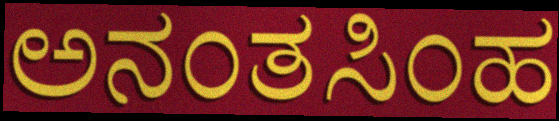
ಅನಂತಸಿಂಹ